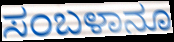
ಸಂಬಳಾನೂ